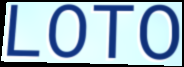
LOTO